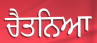
ਚੈਤਨਿਆ